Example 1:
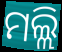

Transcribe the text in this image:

ମଲ୍ଲି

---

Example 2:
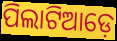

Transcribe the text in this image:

ପିଲାଟିଆଡ଼େ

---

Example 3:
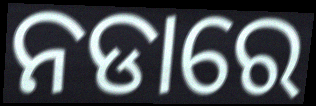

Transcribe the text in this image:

ନଡାରେ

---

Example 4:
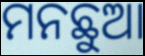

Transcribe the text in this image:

ମନଛୁଆ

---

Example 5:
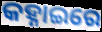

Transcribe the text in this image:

କହ୍ନାଇରେ